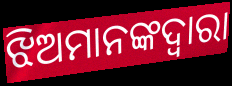
ଝିଅମାନଙ୍କଦ୍ଵାରା